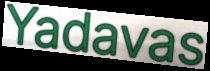
Yadavas